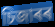
চিজাৰৰ